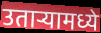
उताऱ्यामध्ये